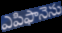
ఎపిఫానెసు